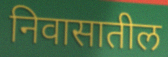
निवासातील